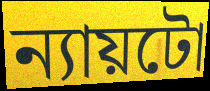
ন্যায়টো